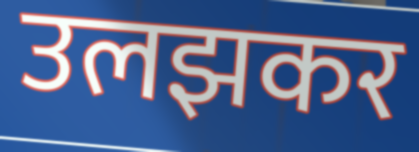
उलझकर